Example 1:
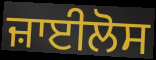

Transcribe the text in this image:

ਜ਼ਾਈਲੋਸ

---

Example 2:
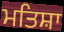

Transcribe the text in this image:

ਮਤਿਸ਼ਾ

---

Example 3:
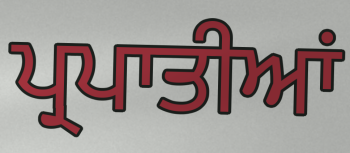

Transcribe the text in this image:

ਪ੍ਰਪਾਤੀਆਂ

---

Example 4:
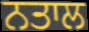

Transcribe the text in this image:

ਨਤਾਲ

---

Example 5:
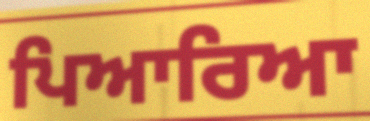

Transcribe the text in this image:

ਪਿਆਰਿਆ